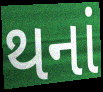
થનાં